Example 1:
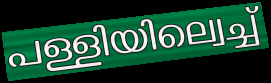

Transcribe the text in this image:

പള്ളിയില്വെച്ച്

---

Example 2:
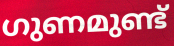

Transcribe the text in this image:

ഗുണമുണ്ട്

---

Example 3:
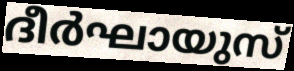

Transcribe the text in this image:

ദീർഘായുസ്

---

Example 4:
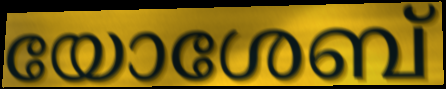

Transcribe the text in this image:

യോശേബ്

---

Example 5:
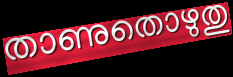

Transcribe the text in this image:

താണുതൊഴുതു